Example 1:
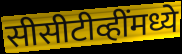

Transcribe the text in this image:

सीसीटीव्हींमध्ये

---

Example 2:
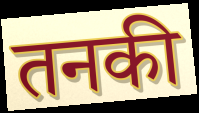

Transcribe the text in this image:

तनकी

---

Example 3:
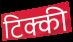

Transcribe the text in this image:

टिक्की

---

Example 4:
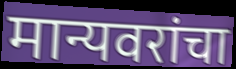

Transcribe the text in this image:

मान्यवरांचा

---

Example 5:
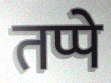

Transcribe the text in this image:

तप्पे